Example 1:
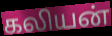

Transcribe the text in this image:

கலியன்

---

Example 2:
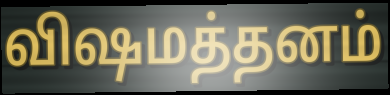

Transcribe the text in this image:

விஷமத்தனம்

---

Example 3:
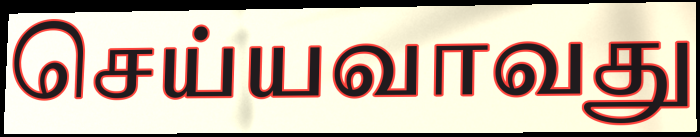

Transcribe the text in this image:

செய்யவாவது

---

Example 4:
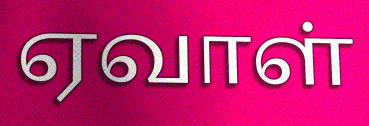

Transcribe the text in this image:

ஏவாள்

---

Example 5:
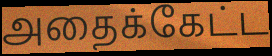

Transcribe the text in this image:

அதைக்கேட்ட